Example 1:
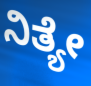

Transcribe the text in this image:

ನಿತ್ಯೇ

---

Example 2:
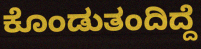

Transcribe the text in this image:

ಕೊಂಡುತಂದಿದ್ದೆ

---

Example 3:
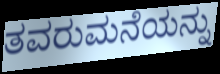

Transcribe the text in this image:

ತವರುಮನೆಯನ್ನು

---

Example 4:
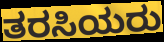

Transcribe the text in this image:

ತರಸಿಯರು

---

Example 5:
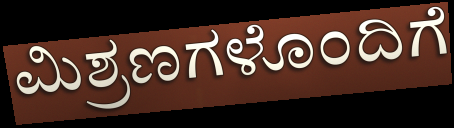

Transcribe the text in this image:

ಮಿಶ್ರಣಗಳೊಂದಿಗೆ